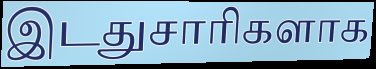
இடதுசாரிகளாக